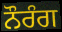
ਨੌਰੰਗ